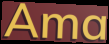
Ama